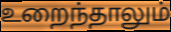
உறைந்தாலும்